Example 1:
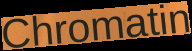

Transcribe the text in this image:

Chromatin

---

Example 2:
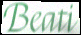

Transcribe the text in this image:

Beati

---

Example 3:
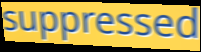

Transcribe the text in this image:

suppressed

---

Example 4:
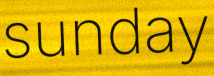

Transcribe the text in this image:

sunday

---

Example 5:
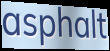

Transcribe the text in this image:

asphalt